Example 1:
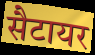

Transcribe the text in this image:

सैटायर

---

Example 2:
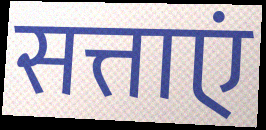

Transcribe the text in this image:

सत्ताएं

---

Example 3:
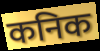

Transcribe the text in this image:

कनिक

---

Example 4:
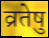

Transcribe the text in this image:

व्रतेषु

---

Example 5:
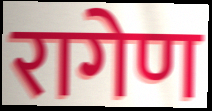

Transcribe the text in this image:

रागेण